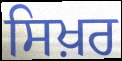
ਸਿਖ਼ਰ